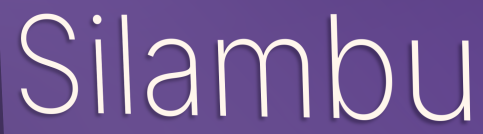
Silambu